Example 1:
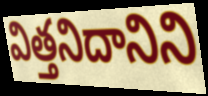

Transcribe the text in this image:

విత్తనిదానిని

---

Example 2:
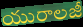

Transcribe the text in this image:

యురాలజీ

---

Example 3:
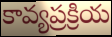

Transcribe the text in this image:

కావ్యప్రక్రియ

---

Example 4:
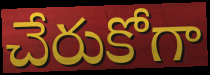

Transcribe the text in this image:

చేరుకోగా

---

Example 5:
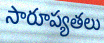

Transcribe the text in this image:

సారూప్యతలు